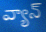
వ్యాన్